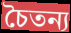
চৈতন্য